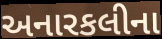
અનારકલીના